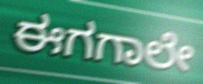
ಈಗಗಾಲೇ